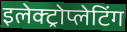
इलेक्ट्रोप्लेटिंग